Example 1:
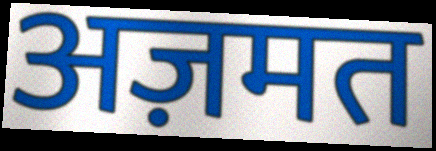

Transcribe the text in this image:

अज़मत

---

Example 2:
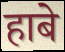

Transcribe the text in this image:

हाबे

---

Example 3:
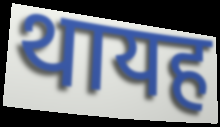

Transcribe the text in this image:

थायह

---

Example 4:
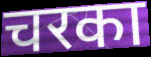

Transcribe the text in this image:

चरका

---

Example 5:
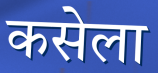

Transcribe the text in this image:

कसेला